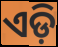
ଏଡ଼ି